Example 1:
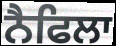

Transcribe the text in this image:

ਨੈਫਿਲਾ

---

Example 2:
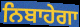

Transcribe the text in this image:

ਨਿਬਾਹੇਗਾ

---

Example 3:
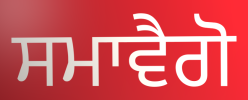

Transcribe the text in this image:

ਸਮਾਵੈਗੋ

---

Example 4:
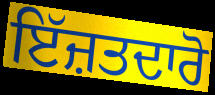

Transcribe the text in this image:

ਇੱਜ਼ਤਦਾਰੋ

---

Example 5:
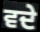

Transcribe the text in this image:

ਵਦੇ